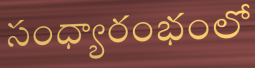
సంధ్యారంభంలో